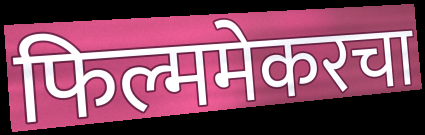
फिल्ममेकरचा